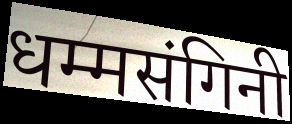
धम्मसंगिनी